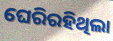
ଘେରିରହିଥିଲା